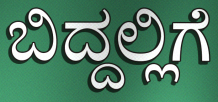
ಬಿದ್ದಲ್ಲಿಗೆ